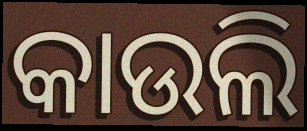
କାଉଲି